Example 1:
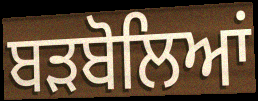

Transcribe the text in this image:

ਬੜਬੋਲਿਆਂ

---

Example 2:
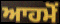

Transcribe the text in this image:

ਆਹਮੋਂ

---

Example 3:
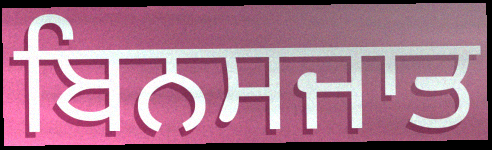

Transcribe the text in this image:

ਬਿਨਸਜਾਤ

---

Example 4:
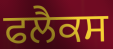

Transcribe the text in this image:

ਫਲੈਕਸ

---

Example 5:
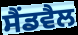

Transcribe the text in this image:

ਸੈਂਡਵੈਲ